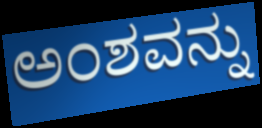
ಅಂಶವನ್ನು